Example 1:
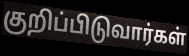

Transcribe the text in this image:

குறிப்பிடுவார்கள்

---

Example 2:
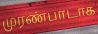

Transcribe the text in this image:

முரண்பாடாக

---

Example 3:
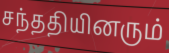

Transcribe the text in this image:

சந்ததியினரும்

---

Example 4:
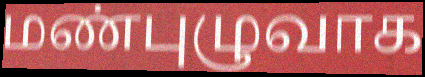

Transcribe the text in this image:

மண்புழுவாக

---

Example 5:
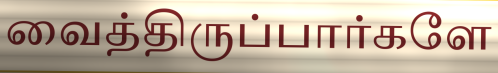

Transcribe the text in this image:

வைத்திருப்பார்களே